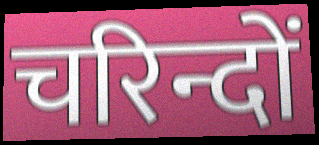
चरिन्दों